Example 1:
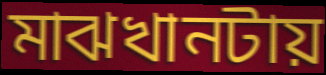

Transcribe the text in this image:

মাঝখানটায়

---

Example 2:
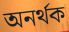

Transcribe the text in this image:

অনর্থক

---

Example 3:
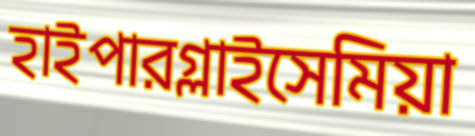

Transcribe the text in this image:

হাইপারগ্লাইসেমিয়া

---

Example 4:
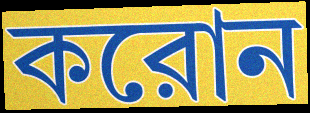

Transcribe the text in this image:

করোন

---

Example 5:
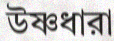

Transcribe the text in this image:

উষ্ণধারা